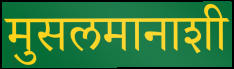
मुसलमानाशी